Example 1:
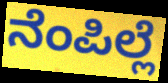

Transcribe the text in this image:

ನೆಂಪಿಲ್ಲೆ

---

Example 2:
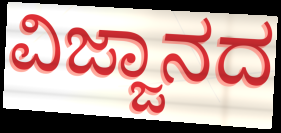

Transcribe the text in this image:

ವಿಜ್ಜಾನದ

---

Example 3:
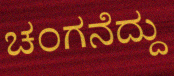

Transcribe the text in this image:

ಚಂಗನೆದ್ದು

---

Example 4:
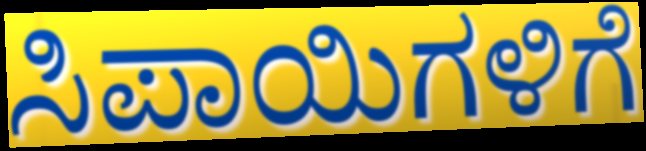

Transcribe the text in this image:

ಸಿಪಾಯಿಗಳಿಗೆ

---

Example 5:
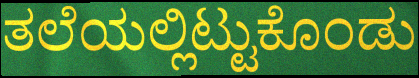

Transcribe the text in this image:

ತಲೆಯಲ್ಲಿಟ್ಟುಕೊಂಡು